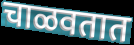
चाळवतात